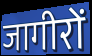
जागीरों